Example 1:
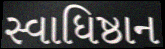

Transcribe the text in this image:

સ્વાધિષ્ઠાન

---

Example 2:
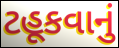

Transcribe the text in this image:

ટહૂકવાનું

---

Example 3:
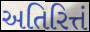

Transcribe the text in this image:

અતિરિત્તં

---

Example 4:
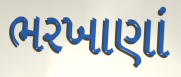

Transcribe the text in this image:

ભરખાણાં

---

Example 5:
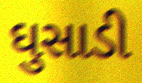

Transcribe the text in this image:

ઘુસાડી